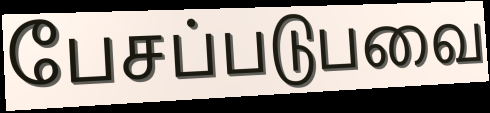
பேசப்படுபவை